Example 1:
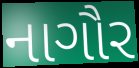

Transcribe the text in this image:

નાગૌર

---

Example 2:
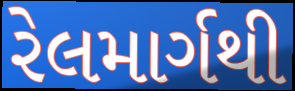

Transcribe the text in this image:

રેલમાર્ગથી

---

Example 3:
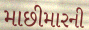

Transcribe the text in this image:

માછીમારની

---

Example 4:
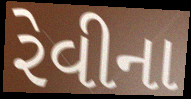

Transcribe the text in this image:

રેવીના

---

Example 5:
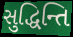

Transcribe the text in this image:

સુદ્ધિન્તિ